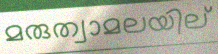
മരുത്വാമലയില്